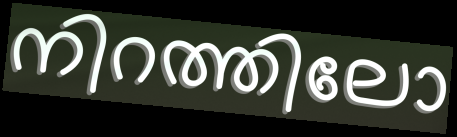
നിറത്തിലോ